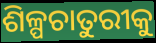
ଶିଳ୍ପଚାତୁରୀକୁ